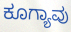
ಕೂಗ್ಯಾವು